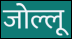
जोल्लू